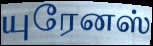
யுரேனஸ்